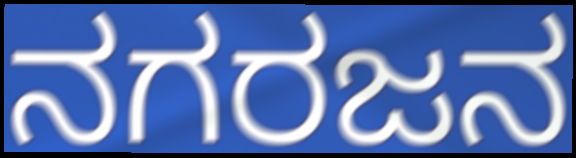
ನಗರಜನ